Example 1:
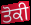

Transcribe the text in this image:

ਤੋਕੀ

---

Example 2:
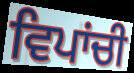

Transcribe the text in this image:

ਵਿਪਾਂਚੀ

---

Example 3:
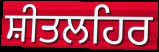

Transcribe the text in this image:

ਸ਼ੀਤਲਹਿਰ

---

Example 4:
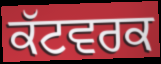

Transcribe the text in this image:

ਕੱਟਵਰਕ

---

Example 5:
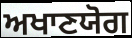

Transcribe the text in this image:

ਅਖਾਣਯੋਗ